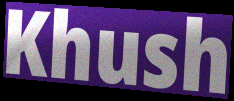
Khush